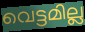
വെട്ടമില്ല